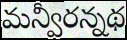
మన్వీరన్నథ